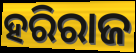
ହରିରାଜ